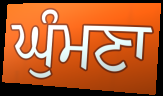
ਘੁੰਮਣਾ